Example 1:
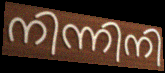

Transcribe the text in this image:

നിന്നിനി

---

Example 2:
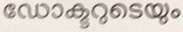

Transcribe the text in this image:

ഡോക്ടറുടെയും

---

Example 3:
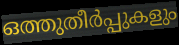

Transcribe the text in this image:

ഒത്തുതീർപ്പുകളും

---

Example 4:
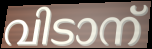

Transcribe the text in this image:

വിടാന്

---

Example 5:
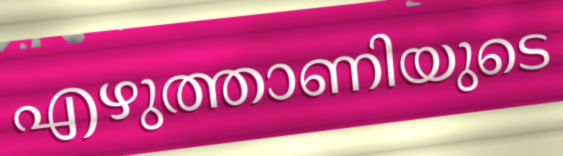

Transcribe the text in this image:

എഴുത്താണിയുടെ